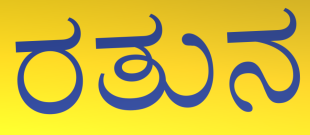
ರತುನ